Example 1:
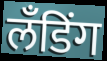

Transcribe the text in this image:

लँडिंग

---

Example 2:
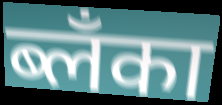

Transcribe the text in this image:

ब्लँका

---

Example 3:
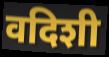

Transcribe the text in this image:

वदिशी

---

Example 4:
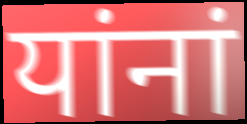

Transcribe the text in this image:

यांनां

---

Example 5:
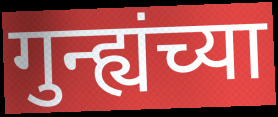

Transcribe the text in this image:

गुन्ह्यंच्या